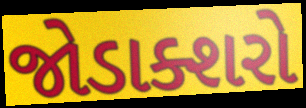
જોડાક્શરો